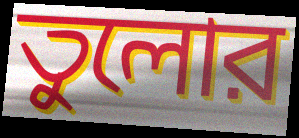
তুলোর